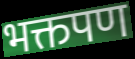
भक्तपण